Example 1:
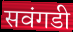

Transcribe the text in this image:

सवंगडी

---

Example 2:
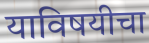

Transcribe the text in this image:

याविषयीचा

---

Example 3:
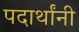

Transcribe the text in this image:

पदार्थांनी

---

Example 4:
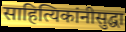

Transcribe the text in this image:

साहित्यिकांनीसुद्धा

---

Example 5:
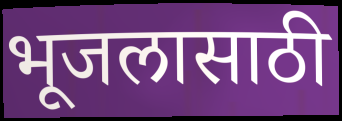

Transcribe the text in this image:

भूजलासाठी